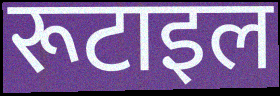
रूटाइल